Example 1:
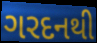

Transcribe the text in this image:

ગરદનથી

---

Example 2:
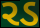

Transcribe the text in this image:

રડ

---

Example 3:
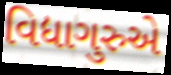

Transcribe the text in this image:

વિદ્યાગુરુએ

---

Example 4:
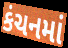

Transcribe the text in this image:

કંચનમાં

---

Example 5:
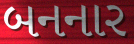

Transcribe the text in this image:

બનનાર